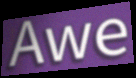
Awe